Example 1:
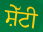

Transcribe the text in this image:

ਸ਼ੇੱਟੀ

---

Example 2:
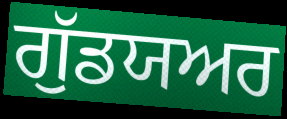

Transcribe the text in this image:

ਗੁੱਡਯਅਰ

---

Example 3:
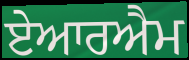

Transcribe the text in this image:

ਏਆਰਐਮ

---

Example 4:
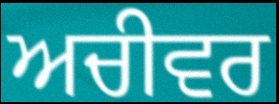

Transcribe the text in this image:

ਅਚੀਵਰ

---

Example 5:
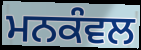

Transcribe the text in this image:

ਮਨਕੰਵਲ